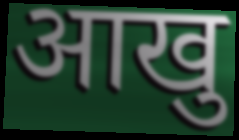
आखु